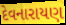
દેવનારાયણ